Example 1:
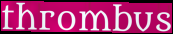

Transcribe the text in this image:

thrombus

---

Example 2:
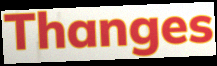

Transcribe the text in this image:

Thanges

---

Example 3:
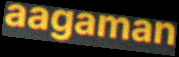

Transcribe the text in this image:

aagaman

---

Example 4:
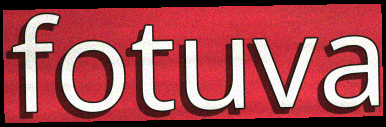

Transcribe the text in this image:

fotuva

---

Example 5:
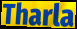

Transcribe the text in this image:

Tharla